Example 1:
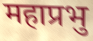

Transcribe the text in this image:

महाप्रभु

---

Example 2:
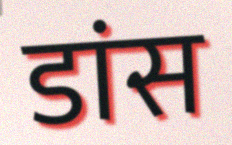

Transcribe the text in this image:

डांस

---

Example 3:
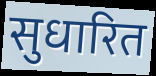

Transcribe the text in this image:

सुधारित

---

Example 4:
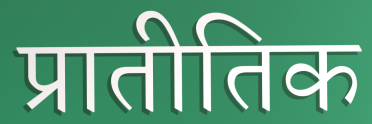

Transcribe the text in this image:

प्रातीतिक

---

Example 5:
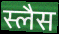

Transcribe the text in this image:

स्लैस